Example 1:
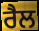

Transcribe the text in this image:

ਰੈਲ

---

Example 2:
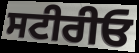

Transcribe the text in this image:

ਸਟੀਰੀਓ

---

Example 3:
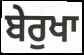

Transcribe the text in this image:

ਬੇਰੁਖਾ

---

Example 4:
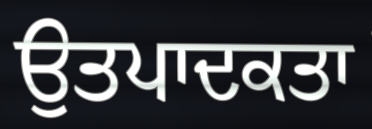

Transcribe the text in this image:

ਉਤਪਾਦਕਤਾ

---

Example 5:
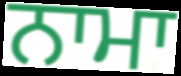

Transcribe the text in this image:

ਨਾਮਾ